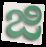
జి